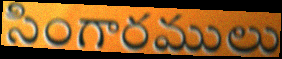
సింగారములు